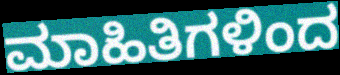
ಮಾಹಿತಿಗಳಿಂದ